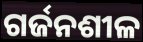
ଗର୍ଜନଶୀଳ